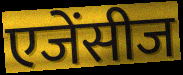
एजेंसीज